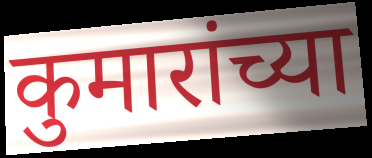
कुमारांच्या